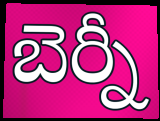
బెర్నీ